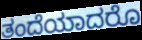
ತಂದೆಯಾದರೊ